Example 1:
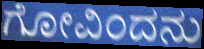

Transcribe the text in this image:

ಗೋವಿಂದನು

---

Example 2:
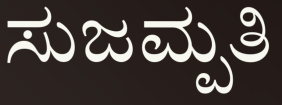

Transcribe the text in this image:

ಸುಜಮ್ಪತಿ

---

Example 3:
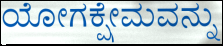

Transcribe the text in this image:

ಯೋಗಕ್ಷೇಮವನ್ನು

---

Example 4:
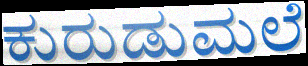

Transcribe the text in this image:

ಕುರುಡುಮಲೆ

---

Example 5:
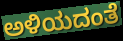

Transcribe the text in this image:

ಅಳಿಯದಂತೆ